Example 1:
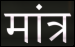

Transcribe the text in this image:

मांत्र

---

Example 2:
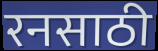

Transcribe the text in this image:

रनसाठी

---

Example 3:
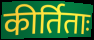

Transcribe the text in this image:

कीर्तिताः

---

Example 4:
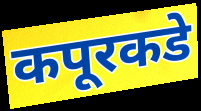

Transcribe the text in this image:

कपूरकडे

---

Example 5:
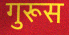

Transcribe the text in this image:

गुरूस